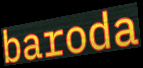
baroda